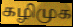
கழிமுக